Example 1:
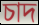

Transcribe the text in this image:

চাদ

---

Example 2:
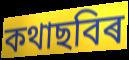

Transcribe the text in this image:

কথাছবিৰ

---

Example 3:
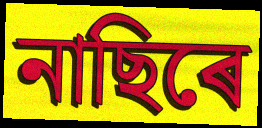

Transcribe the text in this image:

নাছিৰে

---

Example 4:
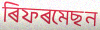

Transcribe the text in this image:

ৰিফৰমেছন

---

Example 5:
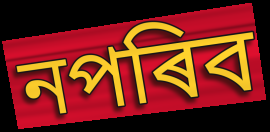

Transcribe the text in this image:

নপৰিব